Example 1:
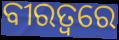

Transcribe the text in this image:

ବୀରତ୍ୱରେ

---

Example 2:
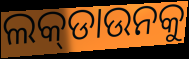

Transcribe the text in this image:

ଲକ୍‌ଡାଉନକୁ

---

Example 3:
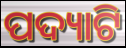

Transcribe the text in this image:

ପଦ୍ୟାଟି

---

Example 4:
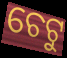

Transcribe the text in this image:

ଚେଟୁ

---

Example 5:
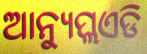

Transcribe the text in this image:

ଆନ୍ୟୁପ୍ଲଏଡି